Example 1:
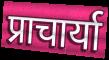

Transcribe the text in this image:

प्राचार्या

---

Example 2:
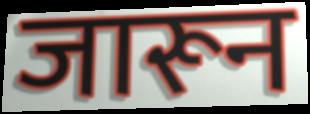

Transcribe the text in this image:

जारून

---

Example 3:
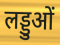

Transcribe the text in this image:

लड्डुओं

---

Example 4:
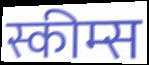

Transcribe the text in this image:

स्कीम्स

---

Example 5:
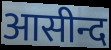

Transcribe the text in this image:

आसीन्द